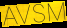
AVSM